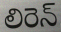
లిరెన్